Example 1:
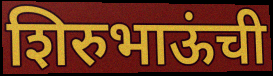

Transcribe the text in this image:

शिरुभाऊंची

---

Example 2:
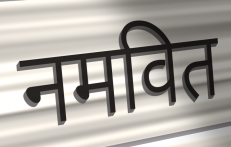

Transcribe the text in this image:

नमवित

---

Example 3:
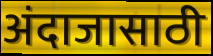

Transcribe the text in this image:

अंदाजासाठी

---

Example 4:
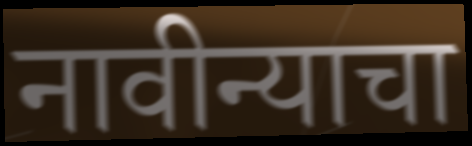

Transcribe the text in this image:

नावीन्याचा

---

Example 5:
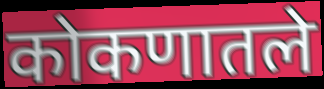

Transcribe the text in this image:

कोकणातले